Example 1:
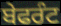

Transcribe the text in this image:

ਬੇਫਰੰਟ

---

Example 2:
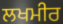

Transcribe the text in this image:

ਲਖਮੀਰ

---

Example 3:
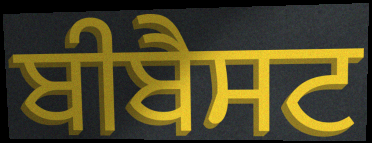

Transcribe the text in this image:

ਬੀਬੈਸਟ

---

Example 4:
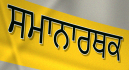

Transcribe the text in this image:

ਸਮਾਨਾਰਥਕ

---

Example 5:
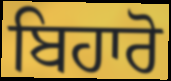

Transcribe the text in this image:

ਬਿਹਾਰੋ